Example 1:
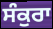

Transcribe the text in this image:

ਸੰਕੁਰਾ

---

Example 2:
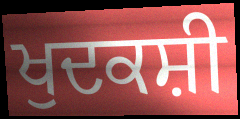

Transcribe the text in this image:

ਖੁਦਕਸ਼ੀ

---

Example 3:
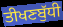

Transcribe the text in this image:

ਤੀਖਣਬੁੱਧੀ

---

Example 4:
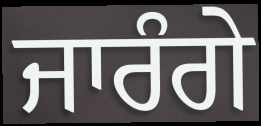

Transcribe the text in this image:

ਜਾਰੰਗੇ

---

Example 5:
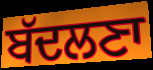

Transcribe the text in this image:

ਬੱਦਲਣਾ